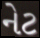
નેટ